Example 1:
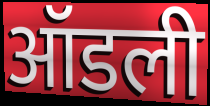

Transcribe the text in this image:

ऑडली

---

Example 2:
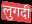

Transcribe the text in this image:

लुगदी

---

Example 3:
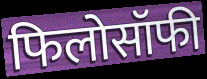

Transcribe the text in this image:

फिलोसॉफी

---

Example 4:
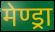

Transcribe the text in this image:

मेण्ड्रा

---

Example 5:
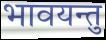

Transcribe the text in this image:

भावयन्तु